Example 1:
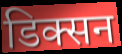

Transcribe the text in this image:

डिक्सन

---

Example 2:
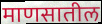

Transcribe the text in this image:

माणसातील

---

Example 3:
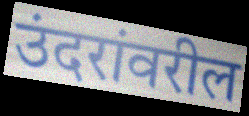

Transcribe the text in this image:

उंदरांवरील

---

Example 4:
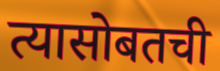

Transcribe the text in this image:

त्यासोबतची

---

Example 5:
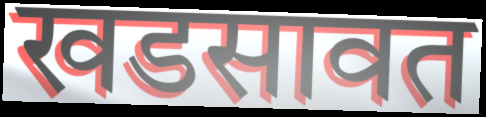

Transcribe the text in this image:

खडसावत